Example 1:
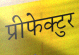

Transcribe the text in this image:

प्रीफेक्टुर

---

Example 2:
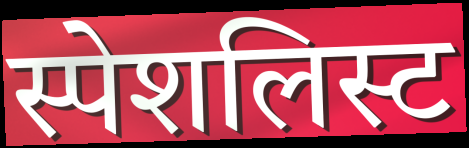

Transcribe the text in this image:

स्पेशलिस्ट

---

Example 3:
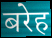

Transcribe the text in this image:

बरेह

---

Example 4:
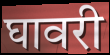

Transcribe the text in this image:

घावरी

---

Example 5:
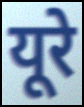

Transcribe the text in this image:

यूरे